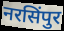
नरसिंपुर